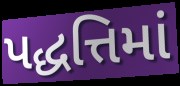
પદ્ધત્તિમાં